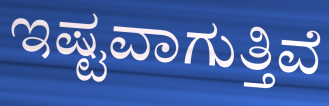
ಇಷ್ಟವಾಗುತ್ತಿವೆ